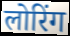
लोरिंग